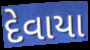
દેવાયા